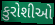
કુરોશીઓ